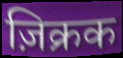
ज़िक्रक